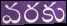
వరకు